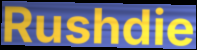
Rushdie